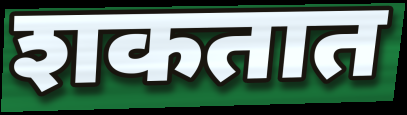
शकतात